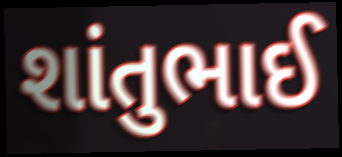
શાંતુભાઈ